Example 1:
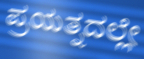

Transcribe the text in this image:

ಪ್ರಯತ್ನದಲ್ಲೇ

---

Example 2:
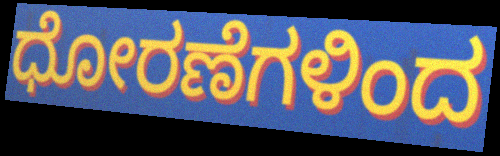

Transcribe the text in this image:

ಧೋರಣೆಗಳಿಂದ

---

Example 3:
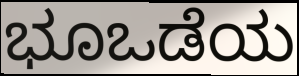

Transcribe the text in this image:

ಭೂಒಡೆಯ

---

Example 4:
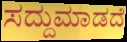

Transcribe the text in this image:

ಸದ್ದುಮಾಡದೆ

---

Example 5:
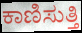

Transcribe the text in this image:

ಕಾಣಿಸುತ್ತಿ